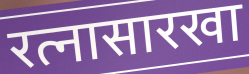
रत्नासारखा